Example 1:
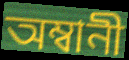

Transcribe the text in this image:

অম্বানী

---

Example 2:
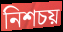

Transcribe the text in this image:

নিশচয়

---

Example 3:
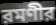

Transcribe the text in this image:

রমণীর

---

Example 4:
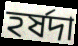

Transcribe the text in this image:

হর্ষদা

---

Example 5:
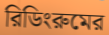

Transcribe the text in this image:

রিডিংরুমের